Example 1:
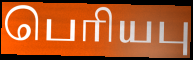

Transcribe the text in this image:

பெரியபு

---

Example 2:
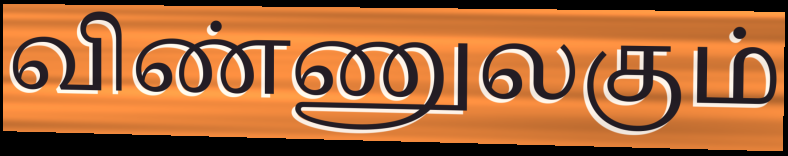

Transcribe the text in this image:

விண்ணுலகும்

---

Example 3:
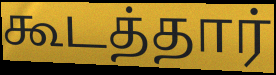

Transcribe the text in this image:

கூடத்தார்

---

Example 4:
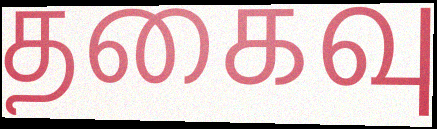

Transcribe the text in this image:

தகைவு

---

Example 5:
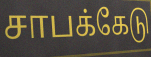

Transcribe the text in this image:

சாபக்கேடு